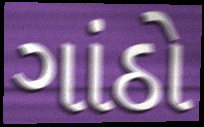
ગાંઠો